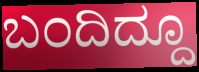
ಬಂದಿದ್ದೂ